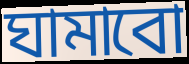
ঘামাবো